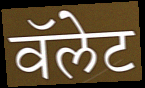
वॅलेट